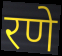
रणे